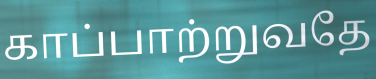
காப்பாற்றுவதே